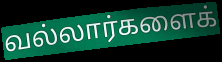
வல்லார்களைக்